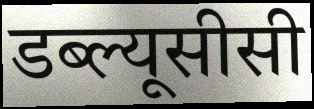
डब्ल्यूसीसी